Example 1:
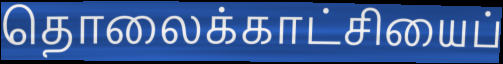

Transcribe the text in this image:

தொலைக்காட்சியைப்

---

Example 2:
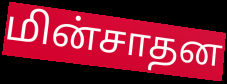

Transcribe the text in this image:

மின்சாதன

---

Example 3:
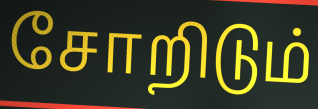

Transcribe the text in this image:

சோறிடும்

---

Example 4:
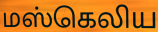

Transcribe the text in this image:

மஸ்கெலிய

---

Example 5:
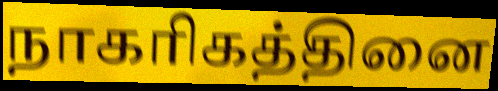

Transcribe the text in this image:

நாகரிகத்தினை